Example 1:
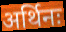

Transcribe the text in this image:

अर्थिनः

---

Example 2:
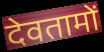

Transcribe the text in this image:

देवतामों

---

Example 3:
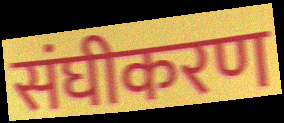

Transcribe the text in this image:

संघीकरण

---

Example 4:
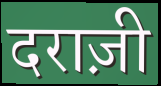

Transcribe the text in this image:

दराज़ी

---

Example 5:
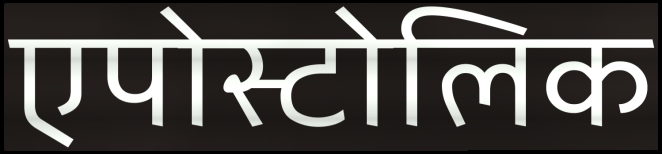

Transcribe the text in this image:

एपोस्टोलिक